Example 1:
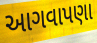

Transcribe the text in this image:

આગવાપણા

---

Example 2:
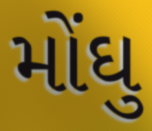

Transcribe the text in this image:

મોંઘુ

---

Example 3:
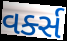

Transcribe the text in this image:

વર્ક્સ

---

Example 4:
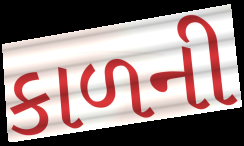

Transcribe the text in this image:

કાળની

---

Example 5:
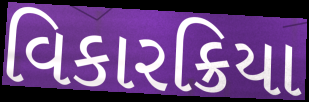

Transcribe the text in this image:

વિકારક્રિયા